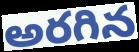
అరగిన